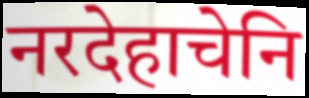
नरदेहाचेनि